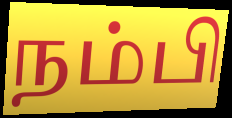
நம்பி